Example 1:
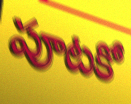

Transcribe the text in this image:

పూటకో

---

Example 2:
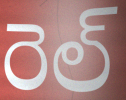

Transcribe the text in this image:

రెల్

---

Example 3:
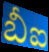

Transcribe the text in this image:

బీఐ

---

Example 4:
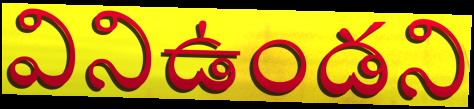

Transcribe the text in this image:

వినిఉండని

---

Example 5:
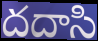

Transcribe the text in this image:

దదాసి